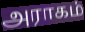
அராகம்